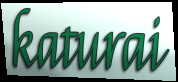
katurai